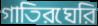
গাতিরঘেরি